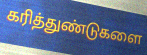
கரித்துண்டுகளை